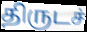
திருடச்